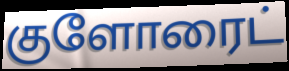
குளோரைட்